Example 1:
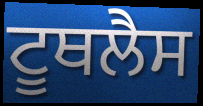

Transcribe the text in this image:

ਟੂਥਲੈਸ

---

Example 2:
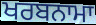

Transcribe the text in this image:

ਖਰਬਨਾਮਾ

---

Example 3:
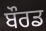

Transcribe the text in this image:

ਬੌਰਡ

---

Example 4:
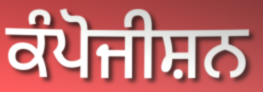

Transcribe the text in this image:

ਕੰਪੋਜੀਸ਼ਨ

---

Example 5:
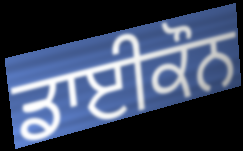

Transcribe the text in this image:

ਡਾਈਕੌਨ